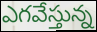
ఎగవేస్తున్న